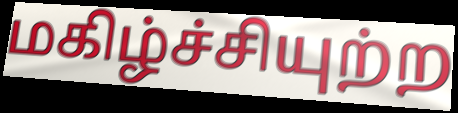
மகிழ்ச்சியுற்ற